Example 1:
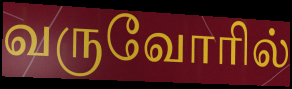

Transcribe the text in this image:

வருவோரில்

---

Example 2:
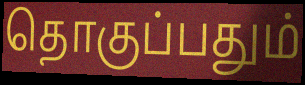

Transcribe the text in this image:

தொகுப்பதும்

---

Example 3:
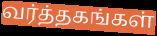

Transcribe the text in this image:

வர்த்தகங்கள்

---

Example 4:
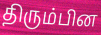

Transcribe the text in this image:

திரும்பின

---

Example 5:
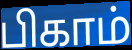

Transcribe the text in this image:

பிகாம்